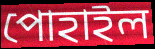
পোহাইল